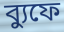
ব্যুফে